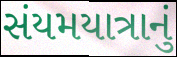
સંયમયાત્રાનું